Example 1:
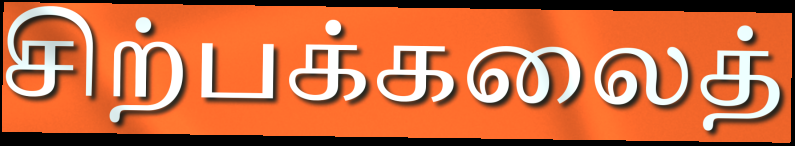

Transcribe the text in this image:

சிற்பக்கலைத்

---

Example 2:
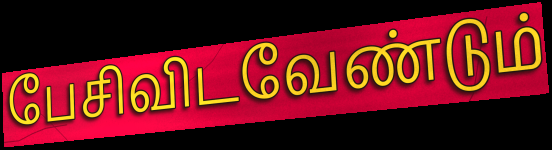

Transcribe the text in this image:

பேசிவிடவேண்டும்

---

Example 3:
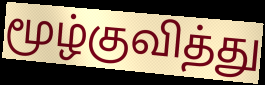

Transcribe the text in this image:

மூழ்குவித்து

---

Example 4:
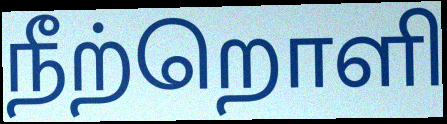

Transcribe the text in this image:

நீற்றொளி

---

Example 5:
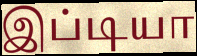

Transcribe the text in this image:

இப்டியா